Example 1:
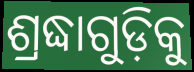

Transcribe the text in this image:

ଶ୍ରଦ୍ଧାଗୁଡ଼ିକୁ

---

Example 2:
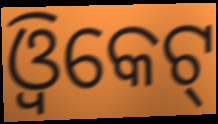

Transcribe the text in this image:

ଓ୍ଵିକେଟ୍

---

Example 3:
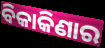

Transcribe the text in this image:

ବିକାକିଣାର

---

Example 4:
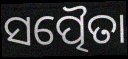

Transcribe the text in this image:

ସତ୍ପୈତା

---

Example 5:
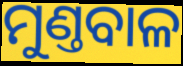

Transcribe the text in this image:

ମୁଣ୍ତବାଳ